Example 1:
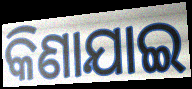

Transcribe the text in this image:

କିଣାଯାଇ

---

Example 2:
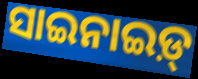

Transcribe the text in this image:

ସାଇନାଇଡ଼୍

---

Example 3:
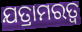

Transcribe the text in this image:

ଯତ୍ରାମରତ୍ଵ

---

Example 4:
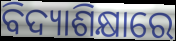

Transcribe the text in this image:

ବିଦ୍ୟାଶିକ୍ଷାରେ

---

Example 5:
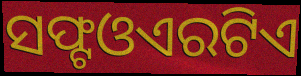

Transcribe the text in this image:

ସଫ୍ଟଓଏରଟିଏ